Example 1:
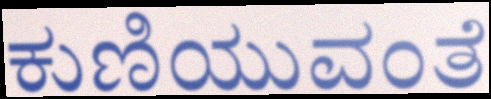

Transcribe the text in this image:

ಕುಣಿಯುವಂತೆ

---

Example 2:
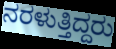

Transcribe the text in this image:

ನರಳುತ್ತಿದ್ದರು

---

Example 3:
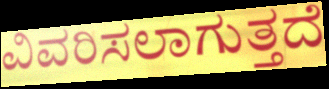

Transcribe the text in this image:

ವಿವರಿಸಲಾಗುತ್ತದೆ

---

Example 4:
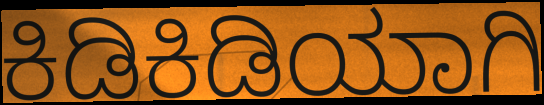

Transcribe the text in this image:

ಕಿಡಿಕಿಡಿಯಾಗಿ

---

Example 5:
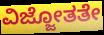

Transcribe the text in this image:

ವಿಜ್ಜೋತತೇ